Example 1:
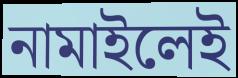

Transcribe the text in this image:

নামাইলেই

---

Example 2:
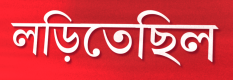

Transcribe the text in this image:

লড়িতেছিল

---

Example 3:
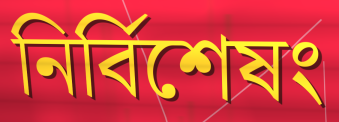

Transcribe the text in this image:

নির্বিশেষং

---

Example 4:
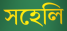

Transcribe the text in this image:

সহেলি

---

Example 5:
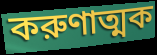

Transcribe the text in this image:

করুণাত্মক